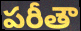
పరీతౌ